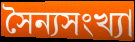
সৈন্যসংখ্যা